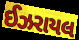
ઈઝરાયલ